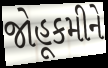
જોહૂકમીને